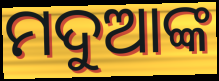
ମଦୁଆଙ୍କ